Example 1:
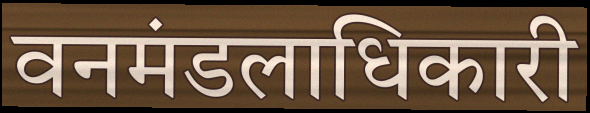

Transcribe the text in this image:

वनमंडलाधिकारी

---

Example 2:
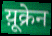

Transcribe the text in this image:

य़ूक्रेन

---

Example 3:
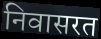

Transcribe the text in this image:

निवासरत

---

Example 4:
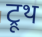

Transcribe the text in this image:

ट्रूथ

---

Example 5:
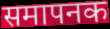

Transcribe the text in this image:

समापनक